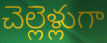
చెల్లెళ్లుగా